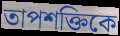
তাপশক্তিকে